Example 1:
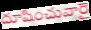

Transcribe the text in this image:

దూషించువారై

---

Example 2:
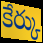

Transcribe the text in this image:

కేర్కు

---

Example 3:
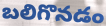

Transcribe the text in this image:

బలిగొనడం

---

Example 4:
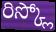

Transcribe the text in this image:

రిస్క్లో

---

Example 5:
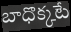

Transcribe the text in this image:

బాధొక్కటే